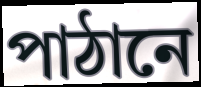
পাঠানে